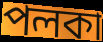
পলকা